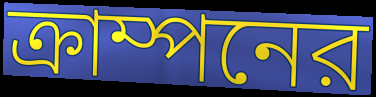
ক্রাম্পনের